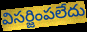
విసర్జింపలేదు